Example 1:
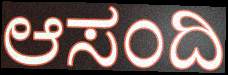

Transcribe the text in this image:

ಆಸಂದಿ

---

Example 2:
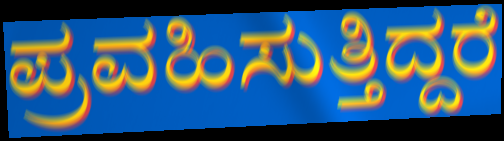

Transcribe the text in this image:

ಪ್ರವಹಿಸುತ್ತಿದ್ದರೆ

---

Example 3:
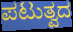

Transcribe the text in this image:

ಪಟುತ್ವದ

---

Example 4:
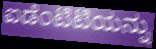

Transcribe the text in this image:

ಐಡೆಂಟಿಟಿಯನ್ನು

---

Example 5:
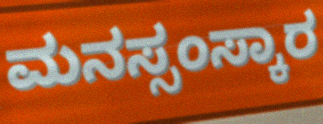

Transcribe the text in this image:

ಮನಸ್ಸಂಸ್ಕಾರ